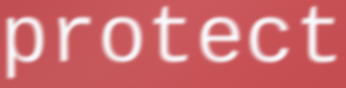
protect